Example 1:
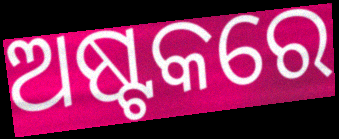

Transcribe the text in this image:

ଅଷ୍ଟକରେ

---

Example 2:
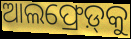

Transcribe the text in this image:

ଆଲଫ୍ରେଡ଼୍‍କୁ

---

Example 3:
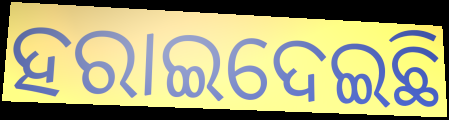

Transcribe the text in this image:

ହରାଇଦେଇଛି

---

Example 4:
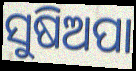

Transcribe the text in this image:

ସୁଷିଅପା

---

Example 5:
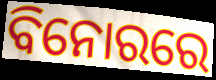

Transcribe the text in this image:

ବିନୋରରେ